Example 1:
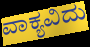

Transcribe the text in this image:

ವಾಕ್ಯವಿದು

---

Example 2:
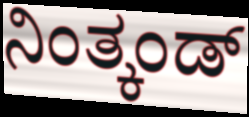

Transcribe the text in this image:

ನಿಂತ್ಕಂಡ್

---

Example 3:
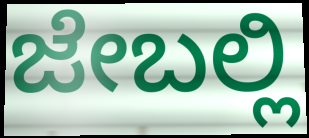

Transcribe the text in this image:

ಜೇಬಲ್ಲಿ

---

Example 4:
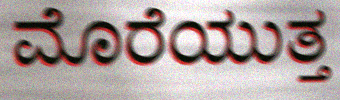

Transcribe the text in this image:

ಮೊರೆಯುತ್ತ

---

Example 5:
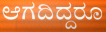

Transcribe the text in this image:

ಆಗದಿದ್ದರೂ